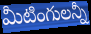
మీటింగులన్నీ